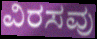
ವಿರಸವು